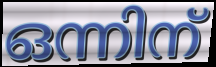
ഒന്നിന്